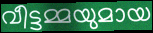
വീട്ടമ്മയുമായ